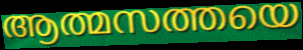
ആത്മസത്തയെ